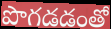
పొగడడంతో